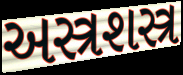
અસ્ત્રશસ્ત્ર